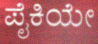
ಪೈಕಿಯೇ